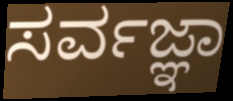
ಸರ್ವಜ್ಞಾ